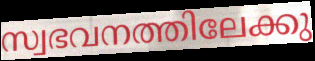
സ്വഭവനത്തിലേക്കു